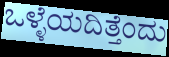
ಒಳ್ಳೆಯದಿತ್ತೆಂದು